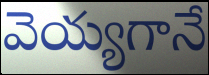
వెయ్యగానే